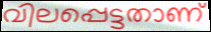
വിലപ്പെട്ടതാണ്